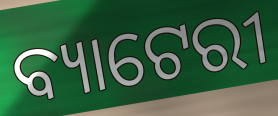
ବ୍ୟାଟେରୀ